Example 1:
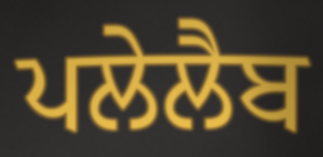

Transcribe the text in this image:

ਪਲੇਲੈਬ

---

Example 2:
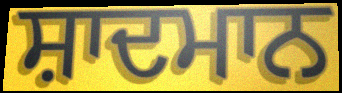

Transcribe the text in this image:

ਸ਼ਾਦਮਾਨ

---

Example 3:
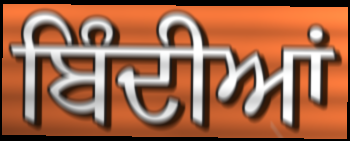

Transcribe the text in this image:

ਬਿੰਦੀਆਂ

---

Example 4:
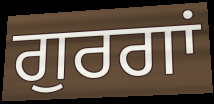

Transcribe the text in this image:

ਗੁਰਗਾਂ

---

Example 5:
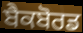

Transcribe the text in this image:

ਬੈਕਬੋਰਡ